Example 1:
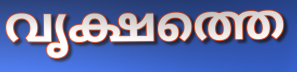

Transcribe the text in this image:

വൃക്ഷത്തെ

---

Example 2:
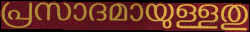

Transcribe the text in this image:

പ്രസാദമായുള്ളതു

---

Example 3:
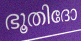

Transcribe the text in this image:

ഭൂതിദോ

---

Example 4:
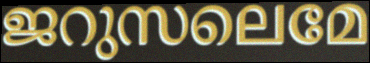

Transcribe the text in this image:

ജറുസലെമേ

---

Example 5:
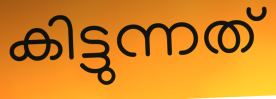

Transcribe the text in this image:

കിട്ടുന്നത്